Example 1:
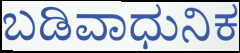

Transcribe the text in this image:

ಬಡಿವಾಧುನಿಕ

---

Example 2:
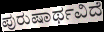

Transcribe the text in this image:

ಪುರುಷಾರ್ಥವಿದೆ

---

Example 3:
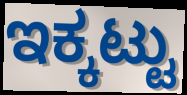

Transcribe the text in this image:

ಇಕ್ಕಟ್ಟು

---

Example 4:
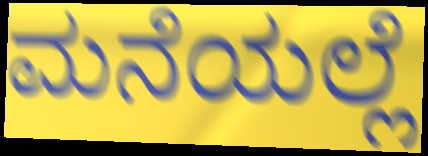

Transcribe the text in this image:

ಮನೆಯಲ್ಲೆ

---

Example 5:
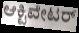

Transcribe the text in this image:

ಆಕ್ಟಿವೇಟರ್